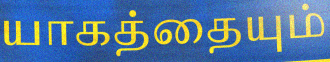
யாகத்தையும்